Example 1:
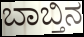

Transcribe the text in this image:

ಬಾಬ್ತಿನ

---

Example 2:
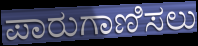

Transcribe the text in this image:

ಪಾರುಗಾಣಿಸಲು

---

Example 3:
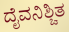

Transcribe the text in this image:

ದೈವನಿಶ್ಚಿತ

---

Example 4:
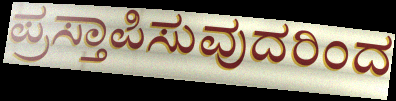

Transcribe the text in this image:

ಪ್ರಸ್ತಾಪಿಸುವುದರಿಂದ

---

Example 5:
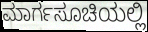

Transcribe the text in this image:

ಮಾರ್ಗಸೂಚಿಯಲ್ಲಿ